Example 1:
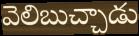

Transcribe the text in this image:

వెలిబుచ్చాడు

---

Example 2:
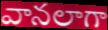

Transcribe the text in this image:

వానలాగా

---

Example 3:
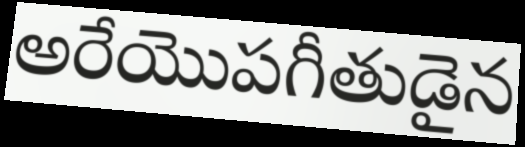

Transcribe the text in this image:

అరేయొపగీతుడైన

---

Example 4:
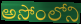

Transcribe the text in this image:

అసోంలోని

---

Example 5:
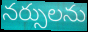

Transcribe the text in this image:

నర్సులను